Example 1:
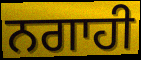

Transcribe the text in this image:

ਨਗਾਹੀ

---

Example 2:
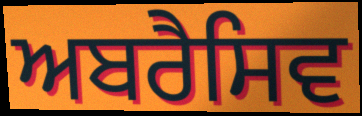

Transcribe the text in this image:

ਅਬਰੈਸਿਵ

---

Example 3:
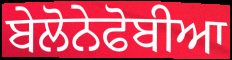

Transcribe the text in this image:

ਬੇਲੋਨੇਫੋਬੀਆ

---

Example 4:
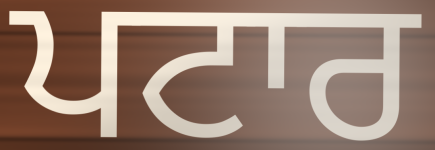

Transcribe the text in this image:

ਪਟਾਰ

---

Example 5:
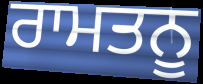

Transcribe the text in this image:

ਰਾਮਤਨੂ